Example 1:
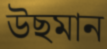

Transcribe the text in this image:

উছমান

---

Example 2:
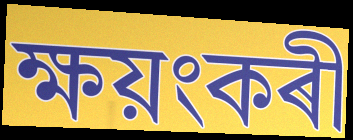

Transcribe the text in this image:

ক্ষয়ংকৰী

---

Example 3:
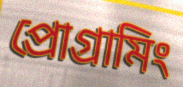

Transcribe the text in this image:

প্ৰোগ্ৰামিং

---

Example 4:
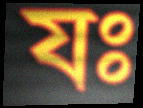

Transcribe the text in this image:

যঃ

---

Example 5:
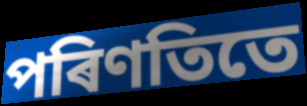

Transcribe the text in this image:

পৰিণতিতে